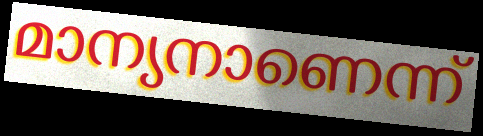
മാന്യനാണെന്ന്